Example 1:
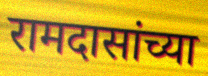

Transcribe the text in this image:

रामदासांच्या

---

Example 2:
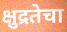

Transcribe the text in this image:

क्षुद्रतेचा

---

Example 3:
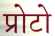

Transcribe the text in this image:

प्रोटो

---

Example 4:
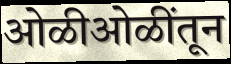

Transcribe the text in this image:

ओळीओळींतून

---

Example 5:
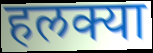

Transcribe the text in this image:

हलक्या